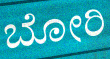
ಬೋರಿ